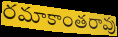
రమాకాంతరావు